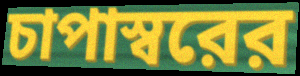
চাপাস্বরের